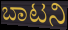
ಬಾಟನಿ